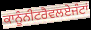
ਕਾਨੂੰਨੀਟਰੈਵਲਏਜੰਟਾਂ